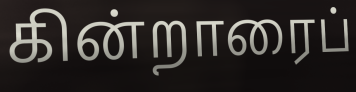
கின்றாரைப்